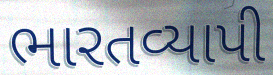
ભારતવ્યાપી